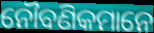
ନୌବଣିକମାନେ